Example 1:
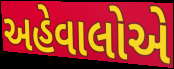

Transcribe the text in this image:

અહેવાલોએ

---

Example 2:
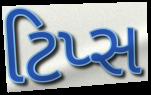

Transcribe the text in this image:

ટિપ્સ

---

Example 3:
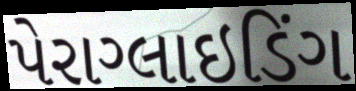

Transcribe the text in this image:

પેરાગ્લાઇડિંગ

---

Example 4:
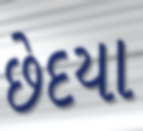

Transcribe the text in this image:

છેદયા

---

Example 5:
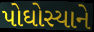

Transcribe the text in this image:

પોઘોસ્યાને